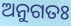
ଅନୁଗତଃ